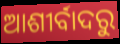
ଆଶୀର୍ବାଦରୁ